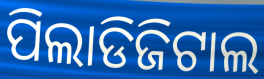
ପିଲାଡିଜିଟାଲ